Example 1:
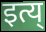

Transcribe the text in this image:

इत्य्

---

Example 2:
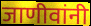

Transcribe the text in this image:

जाणीवांनी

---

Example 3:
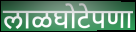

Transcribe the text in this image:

लाळघोटेपणा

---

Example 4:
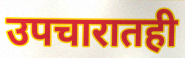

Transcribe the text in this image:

उपचारातही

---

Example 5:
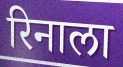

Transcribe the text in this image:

रिनाला